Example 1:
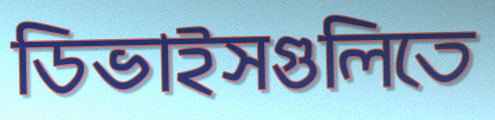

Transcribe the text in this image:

ডিভাইসগুলিতে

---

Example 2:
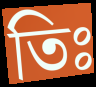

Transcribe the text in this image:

তিঃ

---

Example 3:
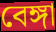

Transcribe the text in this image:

বেঙ্গা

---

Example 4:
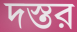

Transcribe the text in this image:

দস্তর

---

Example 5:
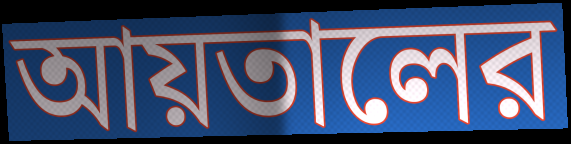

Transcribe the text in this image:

আয়তালের